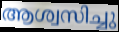
ആശ്വസിച്ചു